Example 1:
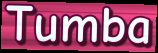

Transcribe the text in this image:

Tumba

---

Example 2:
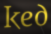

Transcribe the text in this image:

ked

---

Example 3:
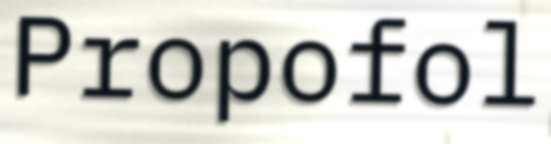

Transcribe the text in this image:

Propofol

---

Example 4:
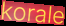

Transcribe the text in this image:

korale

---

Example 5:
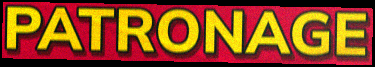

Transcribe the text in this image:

PATRONAGE